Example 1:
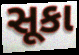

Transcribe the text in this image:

સૂકા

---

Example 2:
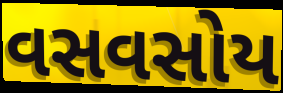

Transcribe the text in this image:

વસવસોય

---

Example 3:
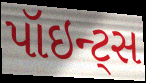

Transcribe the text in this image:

પૉઇન્ટ્સ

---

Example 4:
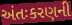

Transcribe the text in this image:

અંતઃકરણની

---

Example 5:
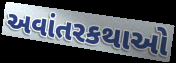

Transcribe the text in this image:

અવાંતરકથાઓ